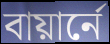
বায়ার্নে